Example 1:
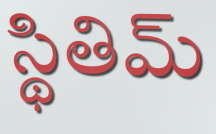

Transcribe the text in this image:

స్థితిమ్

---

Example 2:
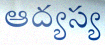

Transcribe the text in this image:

ఆద్యస్య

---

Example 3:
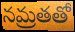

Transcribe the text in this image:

నమ్రతతో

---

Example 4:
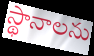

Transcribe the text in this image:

స్థానాలను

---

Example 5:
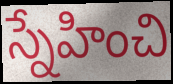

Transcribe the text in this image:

స్నేహించి